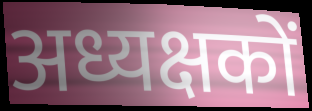
अध्यक्षकों